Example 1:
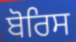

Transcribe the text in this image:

ਬੋਰਿਸ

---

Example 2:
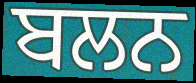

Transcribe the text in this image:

ਬਲਨ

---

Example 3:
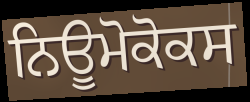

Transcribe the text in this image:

ਨਿਊਮੋਕੋਕਸ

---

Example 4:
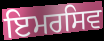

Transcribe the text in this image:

ਇਮਰਸਿਵ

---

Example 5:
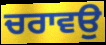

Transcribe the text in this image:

ਚਰਾਵਉ